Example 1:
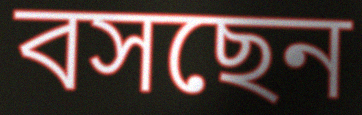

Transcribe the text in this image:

বসছেন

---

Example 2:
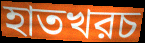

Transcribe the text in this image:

হাতখরচ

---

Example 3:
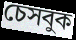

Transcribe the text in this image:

চেসবুক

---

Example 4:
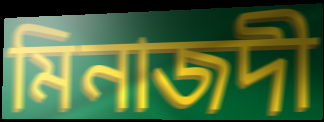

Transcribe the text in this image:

মিনাজদী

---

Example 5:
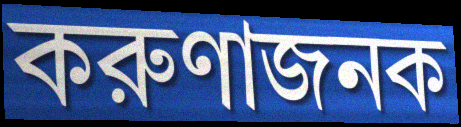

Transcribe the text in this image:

করুণাজনক